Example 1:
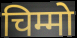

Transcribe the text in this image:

चिम्मो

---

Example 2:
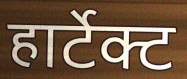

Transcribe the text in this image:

हार्टेक्ट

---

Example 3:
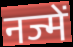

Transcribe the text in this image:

नज्में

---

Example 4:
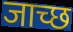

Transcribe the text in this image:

जाच्छ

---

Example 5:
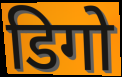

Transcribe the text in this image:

डिगो